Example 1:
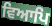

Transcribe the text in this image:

ਵਿਆਪਿ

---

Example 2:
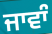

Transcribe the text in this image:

ਜਾਵਾੰ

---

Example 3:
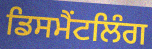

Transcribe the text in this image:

ਡਿਸਮੈਂਟਲਿੰਗ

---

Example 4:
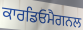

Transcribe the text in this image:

ਕਾਰਡਿਓਮੈਗਨਲ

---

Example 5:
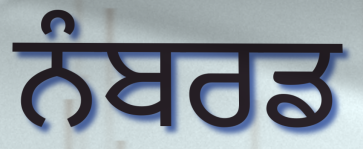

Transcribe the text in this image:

ਨੰਬਰਡ